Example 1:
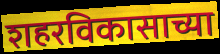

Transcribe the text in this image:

शहरविकासाच्या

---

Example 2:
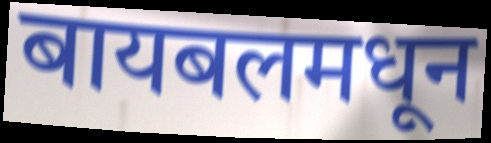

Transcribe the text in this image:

बायबलमधून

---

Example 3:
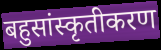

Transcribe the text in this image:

बहुसांस्कृतीकरण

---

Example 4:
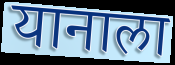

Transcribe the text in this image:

यानाला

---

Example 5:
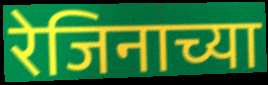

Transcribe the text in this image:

रेजिनाच्या